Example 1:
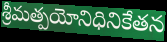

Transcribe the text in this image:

శ్రీమత్పయోనిధినికేతన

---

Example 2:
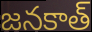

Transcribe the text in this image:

జనకాత్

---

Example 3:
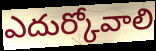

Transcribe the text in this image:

ఎదుర్కోవాలి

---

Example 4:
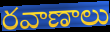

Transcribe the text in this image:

రవాణాలు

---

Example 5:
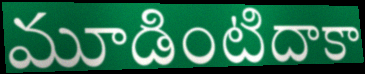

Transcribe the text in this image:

మూడింటిదాకా